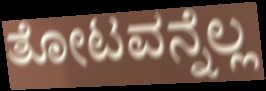
ತೋಟವನ್ನೆಲ್ಲ